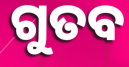
ଗୁତବ